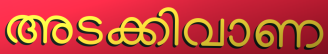
അടക്കിവാണ